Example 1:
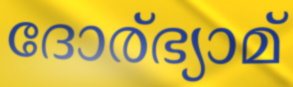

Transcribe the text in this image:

ദോര്ഭ്യാമ്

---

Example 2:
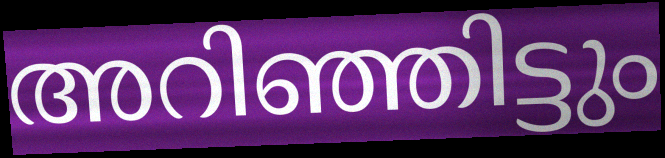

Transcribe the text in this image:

അറിഞ്ഞിട്ടും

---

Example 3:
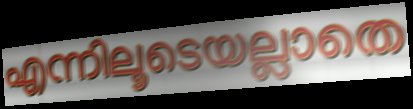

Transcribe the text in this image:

എന്നിലൂടെയല്ലാതെ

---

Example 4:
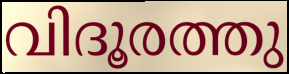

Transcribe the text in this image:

വിദൂരത്തു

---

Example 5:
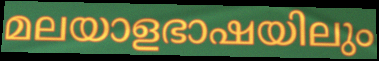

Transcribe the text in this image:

മലയാളഭാഷയിലും